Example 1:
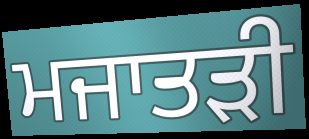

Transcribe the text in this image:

ਮਜਾਤੜੀ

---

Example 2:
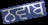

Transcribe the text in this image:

ਨਵਾਬ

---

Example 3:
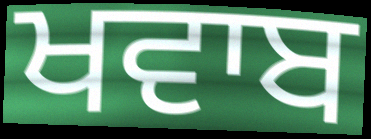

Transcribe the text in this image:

ਖਵਾਬ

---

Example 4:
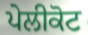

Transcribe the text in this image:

ਪੇਲੀਕੋਟ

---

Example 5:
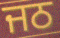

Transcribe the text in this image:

ਜਠ